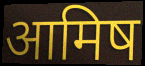
आमिष